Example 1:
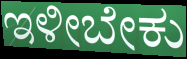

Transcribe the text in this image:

ಇಳೀಬೇಕು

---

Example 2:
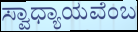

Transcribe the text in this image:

ಸ್ವಾಧ್ಯಾಯವೆಂಬ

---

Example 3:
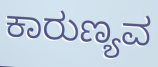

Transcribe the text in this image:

ಕಾರುಣ್ಯವ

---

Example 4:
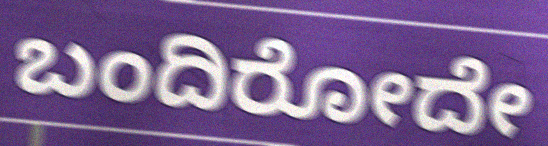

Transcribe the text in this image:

ಬಂದಿರೋದೇ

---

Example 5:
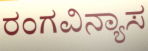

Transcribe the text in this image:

ರಂಗವಿನ್ಯಾಸ